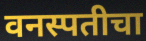
वनस्पतीचा